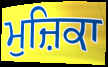
ਮੁਜ਼ਿਕਾ